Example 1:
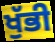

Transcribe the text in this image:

ਖੁੱਭੀ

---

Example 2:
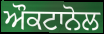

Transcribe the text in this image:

ਔਕਟਾਨੋਲ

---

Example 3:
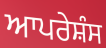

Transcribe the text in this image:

ਆਪਰੇਸ਼ੰਸ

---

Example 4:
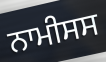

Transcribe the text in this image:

ਨਾਮੀਸਸ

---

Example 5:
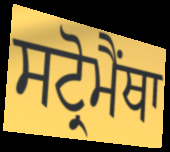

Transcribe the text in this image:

ਸਟ੍ਰੋਮੈਂਥਾ